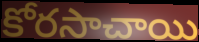
కోరసాచాయి